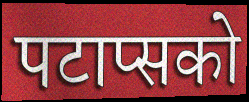
पटाप्सको